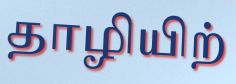
தாழியிற்